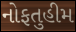
નોફતુહીમ